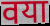
वया